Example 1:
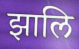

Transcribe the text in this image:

झालि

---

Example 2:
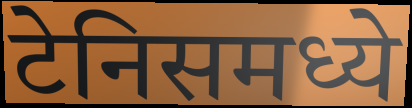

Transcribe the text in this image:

टेनिसमध्ये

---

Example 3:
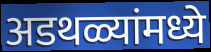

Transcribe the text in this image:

अडथळ्यांमध्ये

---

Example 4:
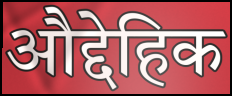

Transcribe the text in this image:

औद्देहिक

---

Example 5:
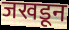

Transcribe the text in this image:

जखडून